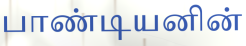
பாண்டியனின்